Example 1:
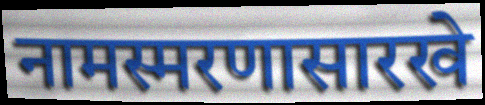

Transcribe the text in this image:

नामस्मरणासारखे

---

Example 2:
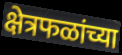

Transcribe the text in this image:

क्षेत्रफळांच्या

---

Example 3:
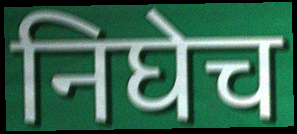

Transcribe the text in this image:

निघेच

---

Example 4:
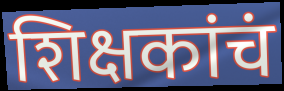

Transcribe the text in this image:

शिक्षकांचं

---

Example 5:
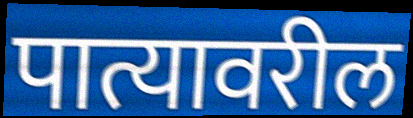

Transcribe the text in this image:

पात्यावरील